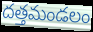
దత్తమండలం